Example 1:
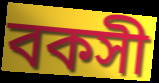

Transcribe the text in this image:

বকসী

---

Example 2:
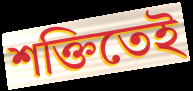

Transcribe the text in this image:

শক্তিতেই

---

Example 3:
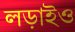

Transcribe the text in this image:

লড়াইও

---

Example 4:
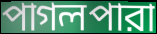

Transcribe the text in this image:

পাগলপারা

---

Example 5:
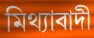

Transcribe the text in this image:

মিথ্যাবাদী